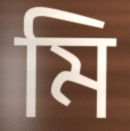
মি